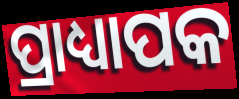
ପ୍ରାଧ୍ୟାପକ